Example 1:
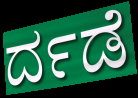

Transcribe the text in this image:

ರ್ದಡೆ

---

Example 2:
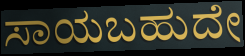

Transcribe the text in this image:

ಸಾಯಬಹುದೇ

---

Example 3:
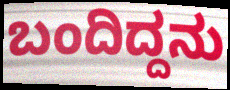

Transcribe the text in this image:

ಬಂದಿದ್ದನು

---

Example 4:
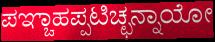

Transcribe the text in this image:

ಪಞ್ಚಾಹಪ್ಪಟಿಚ್ಛನ್ನಾಯೋ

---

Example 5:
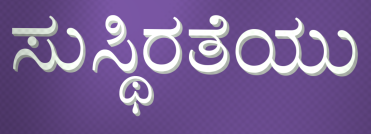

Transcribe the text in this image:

ಸುಸ್ಥಿರತೆಯು